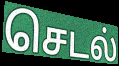
செடல்